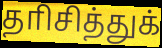
தரிசித்துக்